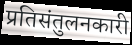
प्रतिसंतुलनकारी